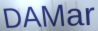
DAMar